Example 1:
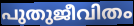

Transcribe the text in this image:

പുതുജീവിതം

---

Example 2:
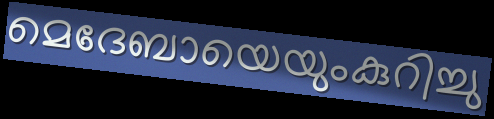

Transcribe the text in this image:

മെദേബായെയുംകുറിച്ചു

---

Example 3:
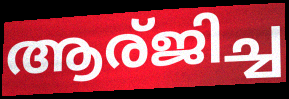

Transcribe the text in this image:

ആര്ജിച്ച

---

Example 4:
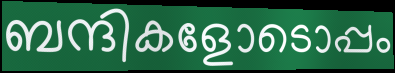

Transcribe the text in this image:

ബന്ദികളോടൊപ്പം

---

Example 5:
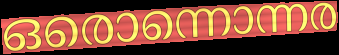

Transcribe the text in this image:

ഒരൊന്നൊന്നര